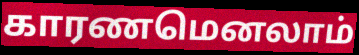
காரணமெனலாம்